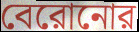
বেরোনোর